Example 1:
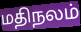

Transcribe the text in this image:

மதிநலம்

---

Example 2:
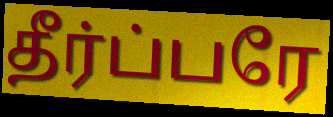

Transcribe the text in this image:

தீர்ப்பரே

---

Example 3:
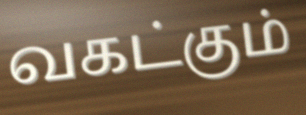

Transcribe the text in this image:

வகட்கும்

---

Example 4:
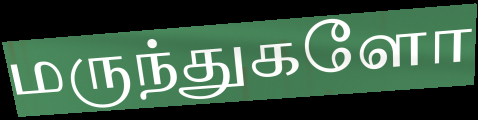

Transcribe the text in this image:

மருந்துகளோ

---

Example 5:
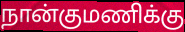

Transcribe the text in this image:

நான்குமணிக்கு